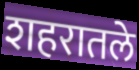
शहरातले